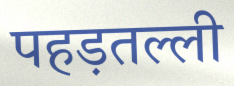
पहड़तल्ली